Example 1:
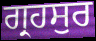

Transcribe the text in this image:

ਗ੍ਰਹਸੁਰ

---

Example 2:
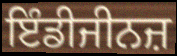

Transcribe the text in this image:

ਇੰਡੀਜੀਨਜ਼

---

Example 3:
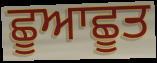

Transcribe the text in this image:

ਛੂਆਛੂਤ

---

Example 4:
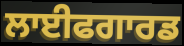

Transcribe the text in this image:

ਲਾਈਫਗਾਰਡ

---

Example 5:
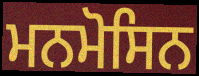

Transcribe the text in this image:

ਮਨਮੋਸਿਨ